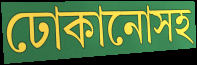
ঢোকানোসহ